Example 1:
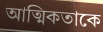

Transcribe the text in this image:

আত্মিকতাকে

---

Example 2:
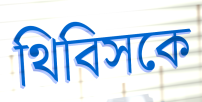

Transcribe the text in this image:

থিবিসকে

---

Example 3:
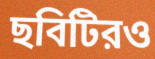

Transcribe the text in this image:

ছবিটিরও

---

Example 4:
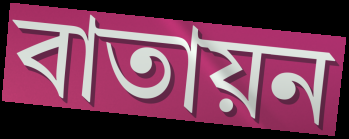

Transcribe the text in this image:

বাতায়ন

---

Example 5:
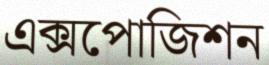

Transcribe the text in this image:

এক্সপোজিশন